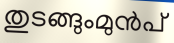
തുടങ്ങുംമുൻപ്